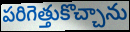
పరిగెత్తుకొచ్చాను